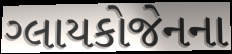
ગ્લાયકોજેનના